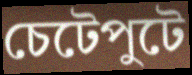
চেটেপুটে